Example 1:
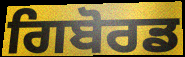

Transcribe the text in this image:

ਗਿਬੋਰਡ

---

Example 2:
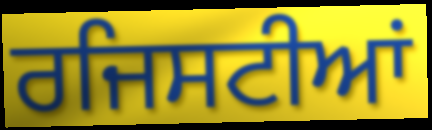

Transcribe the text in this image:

ਰਜਿਸਟੀਆਂ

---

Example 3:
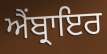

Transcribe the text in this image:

ਐਂਬ੍ਰਾਇਰ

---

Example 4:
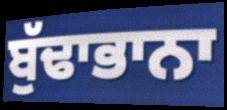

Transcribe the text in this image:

ਬੁੱਢਾਭਾਨਾ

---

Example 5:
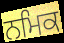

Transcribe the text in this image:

ਨਮਿਕ